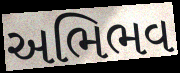
અભિભવ